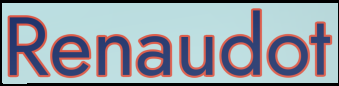
Renaudot